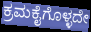
ಕ್ರಮಕೈಗೊಳ್ಳದೇ